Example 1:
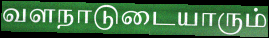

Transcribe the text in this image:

வளநாடுடையாரும்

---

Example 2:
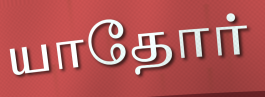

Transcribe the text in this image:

யாதோர்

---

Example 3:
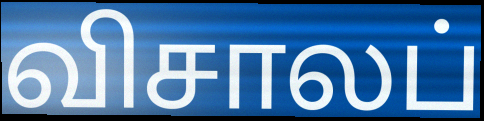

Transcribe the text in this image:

விசாலப்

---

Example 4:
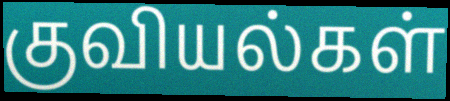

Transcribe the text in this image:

குவியல்கள்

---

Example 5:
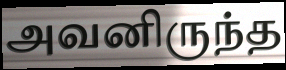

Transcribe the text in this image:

அவனிருந்த